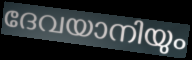
ദേവയാനിയും